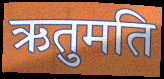
ऋतुमति